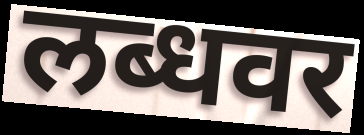
लब्धवर